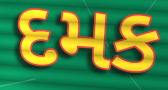
દમક